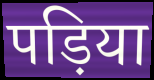
पड़िया